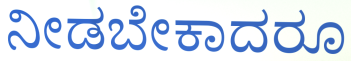
ನೀಡಬೇಕಾದರೂ